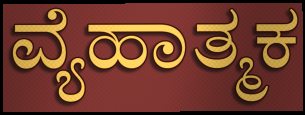
ವ್ಯೆಹಾತ್ಮಕ